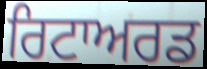
ਰਿਟਾਅਰਡ